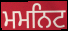
ਮਮਨਿਟ